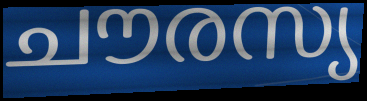
ചൗരസ്യ